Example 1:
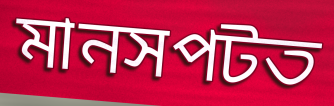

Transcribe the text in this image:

মানসপটত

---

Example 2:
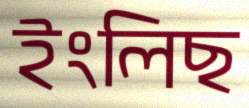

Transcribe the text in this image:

ইংলিছ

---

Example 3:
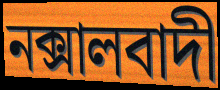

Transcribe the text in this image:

নক্সালবাদী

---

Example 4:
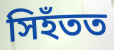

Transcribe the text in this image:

সিহঁতত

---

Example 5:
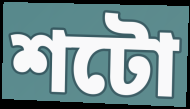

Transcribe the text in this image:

শটো